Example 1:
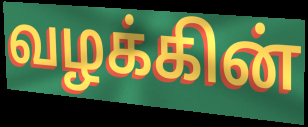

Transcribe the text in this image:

வழக்கின்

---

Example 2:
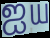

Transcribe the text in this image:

ஐய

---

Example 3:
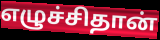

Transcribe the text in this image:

எழுச்சிதான்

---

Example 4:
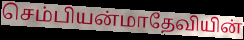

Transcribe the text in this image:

செம்பியன்மாதேவியின்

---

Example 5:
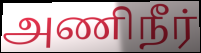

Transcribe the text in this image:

அணிநீர்